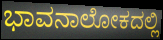
ಭಾವನಾಲೋಕದಲ್ಲಿ